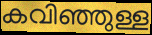
കവിഞ്ഞുള്ള